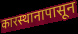
कारस्थानापासून